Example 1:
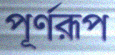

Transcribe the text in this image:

পূর্ণরূপ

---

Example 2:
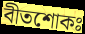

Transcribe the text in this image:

বীতশোকঃ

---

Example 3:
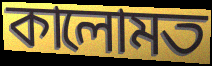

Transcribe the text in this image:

কালোমত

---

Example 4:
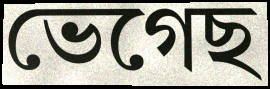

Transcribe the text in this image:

ভেগেছ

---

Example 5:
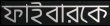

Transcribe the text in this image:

ফাইবারকে